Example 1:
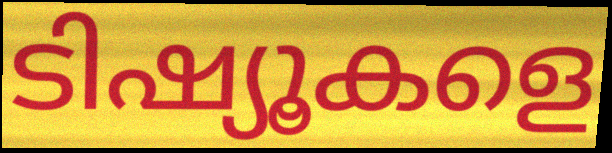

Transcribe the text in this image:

ടിഷ്യൂകളെ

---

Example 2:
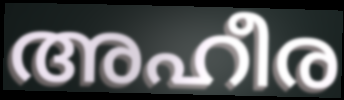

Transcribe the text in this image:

അഹീര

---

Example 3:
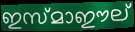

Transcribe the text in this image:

ഇസ്മാഈല്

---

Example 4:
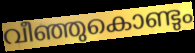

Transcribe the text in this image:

വീഞ്ഞുകൊണ്ടും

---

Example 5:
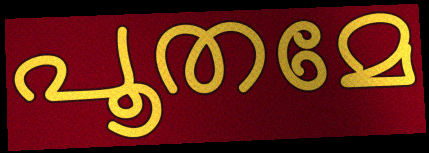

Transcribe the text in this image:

പൂതമേ